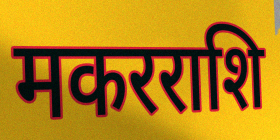
मकरराशि